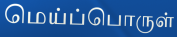
மெய்ப்பொருள்